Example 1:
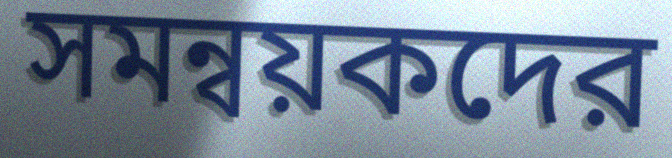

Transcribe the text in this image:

সমন্বয়কদের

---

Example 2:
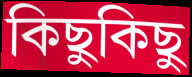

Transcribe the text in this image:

কিছুকিছু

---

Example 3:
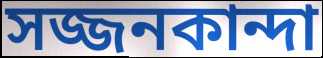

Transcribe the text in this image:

সজ্জনকান্দা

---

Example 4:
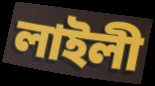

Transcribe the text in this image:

লাইলী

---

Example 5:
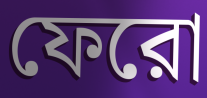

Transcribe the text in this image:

ফেরো